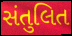
સંતુલિત